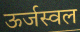
ऊर्जस्वल